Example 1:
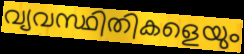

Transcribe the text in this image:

വ്യവസ്ഥിതികളെയും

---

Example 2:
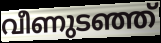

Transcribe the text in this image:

വീണുടഞ്ഞ്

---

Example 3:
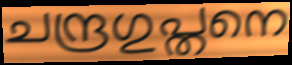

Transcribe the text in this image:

ചന്ദ്രഗുപ്തനെ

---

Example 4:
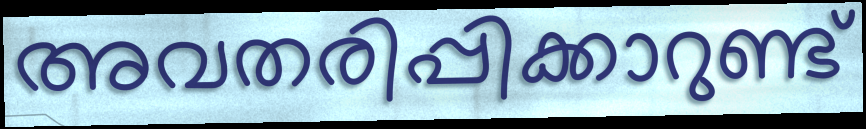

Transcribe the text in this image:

അവതരിപ്പിക്കാറുണ്ട്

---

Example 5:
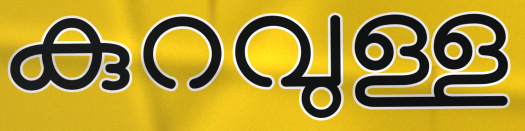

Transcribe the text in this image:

കുറവുള്ള